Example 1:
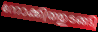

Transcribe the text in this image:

നോക്കിത്തുടങ്ങി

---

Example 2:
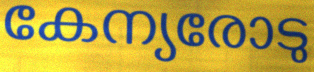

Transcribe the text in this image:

കേന്യരോടു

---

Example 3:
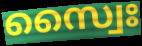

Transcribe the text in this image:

സ്വൈഃ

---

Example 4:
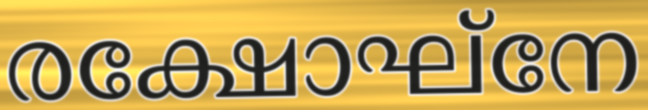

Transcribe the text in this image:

രക്ഷോഘ്നേ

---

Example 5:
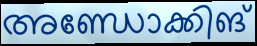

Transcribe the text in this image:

അണ്ഡോക്കിങ്